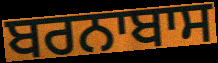
ਬਰਨਾਬਾਸ